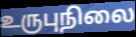
உருபுநிலை